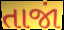
તાજાં